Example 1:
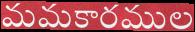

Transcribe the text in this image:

మమకారముల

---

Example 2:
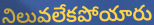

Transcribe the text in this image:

నిలువలేకపోయారు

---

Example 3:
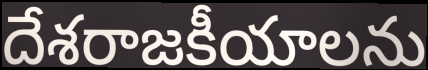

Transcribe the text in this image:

దేశరాజకీయాలను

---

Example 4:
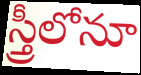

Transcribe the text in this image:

స్త్రీలోనూ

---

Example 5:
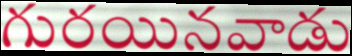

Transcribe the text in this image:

గురయినవాడు